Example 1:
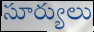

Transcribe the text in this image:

సూర్యులు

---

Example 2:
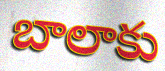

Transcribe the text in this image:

బాలాకు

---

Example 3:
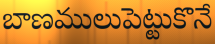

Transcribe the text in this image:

బాణములుపెట్టుకొనే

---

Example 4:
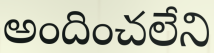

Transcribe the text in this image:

అందించలేని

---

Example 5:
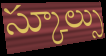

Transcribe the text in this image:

స్కూల్సు